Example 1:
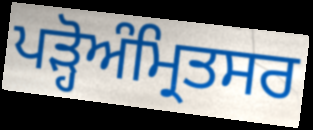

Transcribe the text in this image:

ਪੜ੍ਹੋਅੰਮ੍ਰਿਤਸਰ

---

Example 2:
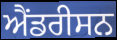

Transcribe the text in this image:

ਐਂਡਰੀਸਨ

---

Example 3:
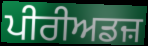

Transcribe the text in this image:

ਪੀਰੀਅਡਜ਼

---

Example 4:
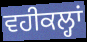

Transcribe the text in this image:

ਵਹੀਕਲ੍ਹਾਂ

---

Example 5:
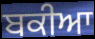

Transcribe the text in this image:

ਬਕੀਆ